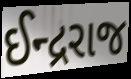
ઈન્દ્રરાજ